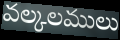
వల్కలములు